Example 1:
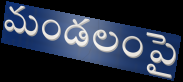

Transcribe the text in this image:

మండలంపై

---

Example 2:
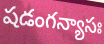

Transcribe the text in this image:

షడంగన్యాసః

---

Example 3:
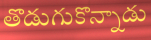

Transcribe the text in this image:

తొడుగుకొన్నాడు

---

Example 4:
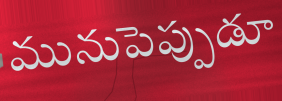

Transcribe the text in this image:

మునుపెప్పుడూ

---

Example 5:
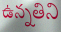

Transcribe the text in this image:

ఉన్నతిని